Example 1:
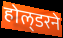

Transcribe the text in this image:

होल्डरने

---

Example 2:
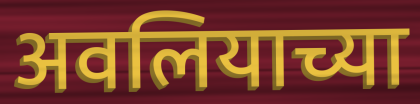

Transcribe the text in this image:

अवलियाच्या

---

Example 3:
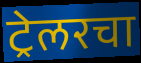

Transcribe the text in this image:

ट्रेलरचा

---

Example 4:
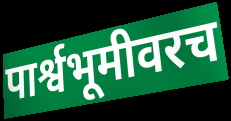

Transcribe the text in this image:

पार्श्वभूमीवरच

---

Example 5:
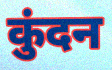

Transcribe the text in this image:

कुंदन